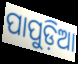
ପାପୁଡ଼ିଆ